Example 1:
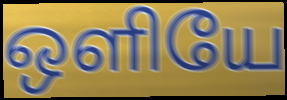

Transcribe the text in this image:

ஒளியே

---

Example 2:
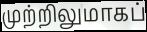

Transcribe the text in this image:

முற்றிலுமாகப்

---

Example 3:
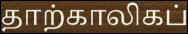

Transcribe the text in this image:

தாற்காலிகப்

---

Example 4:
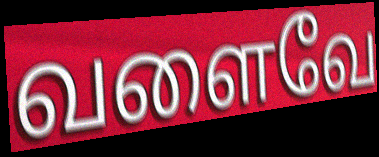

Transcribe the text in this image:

வளைவே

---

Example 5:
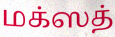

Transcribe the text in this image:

மக்ஸத்